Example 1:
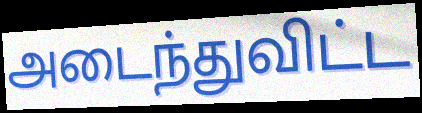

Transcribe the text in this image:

அடைந்துவிட்ட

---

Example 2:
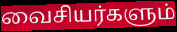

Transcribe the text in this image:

வைசியர்களும்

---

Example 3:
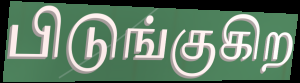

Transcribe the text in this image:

பிடுங்குகிற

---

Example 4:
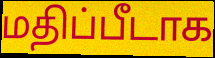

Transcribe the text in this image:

மதிப்பீடாக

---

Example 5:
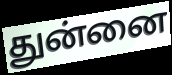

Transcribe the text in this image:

துன்னை